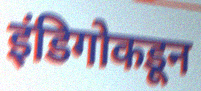
इंडिगोकडून